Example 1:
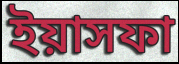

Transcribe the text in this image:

ইয়াসফা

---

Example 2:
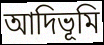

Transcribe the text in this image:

আদিভূমি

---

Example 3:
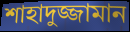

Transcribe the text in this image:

শাহাদুজ্জামান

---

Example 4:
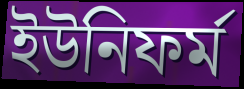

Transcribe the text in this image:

ইউনিফর্ম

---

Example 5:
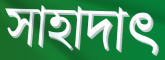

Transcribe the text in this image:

সাহাদাৎ